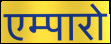
एम्पारो